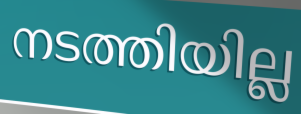
നടത്തിയില്ല